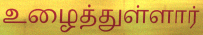
உழைத்துள்ளார்